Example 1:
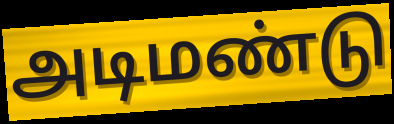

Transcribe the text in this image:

அடிமண்டு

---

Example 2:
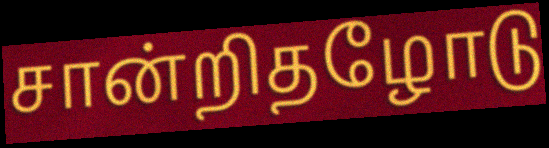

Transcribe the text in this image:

சான்றிதழோடு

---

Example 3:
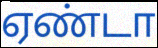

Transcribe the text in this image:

ஏண்டா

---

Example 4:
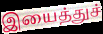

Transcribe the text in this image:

இயைத்துச்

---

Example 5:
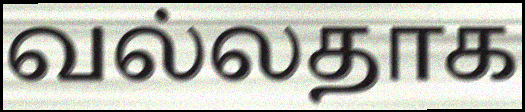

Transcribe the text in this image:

வல்லதாக